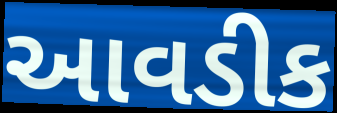
આવડીક